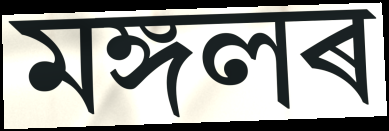
মঙ্গলৰ